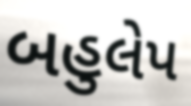
બહુલેપ